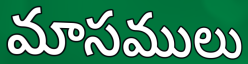
మాసములు